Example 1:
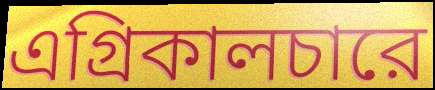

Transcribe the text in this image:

এগ্রিকালচারে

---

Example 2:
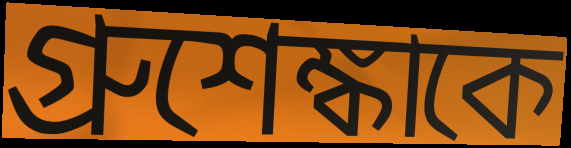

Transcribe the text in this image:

গ্রুশেঙ্কাকে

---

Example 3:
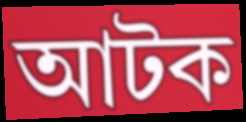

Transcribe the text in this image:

আটক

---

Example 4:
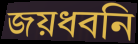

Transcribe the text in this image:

জয়ধবনি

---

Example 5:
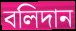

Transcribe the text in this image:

বলিদান